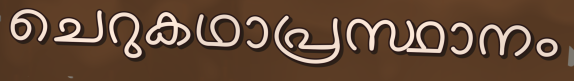
ചെറുകഥാപ്രസ്ഥാനം